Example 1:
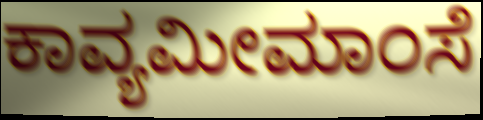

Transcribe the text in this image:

ಕಾವ್ಯಮೀಮಾಂಸೆ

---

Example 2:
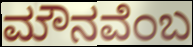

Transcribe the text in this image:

ಮೌನವೆಂಬ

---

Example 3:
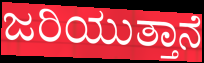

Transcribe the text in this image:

ಜರಿಯುತ್ತಾನೆ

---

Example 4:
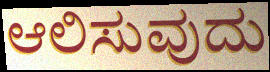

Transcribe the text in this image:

ಆಲಿಸುವುದು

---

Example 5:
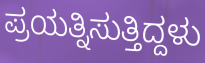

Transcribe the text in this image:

ಪ್ರಯತ್ನಿಸುತ್ತಿದ್ದಳು